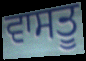
ਵਾਸਤੂ